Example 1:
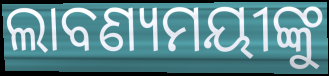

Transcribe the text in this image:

ଲାବଣ୍ୟମୟୀଙ୍କୁ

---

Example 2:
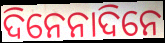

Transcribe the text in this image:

ଦିନେନାଦିନେ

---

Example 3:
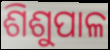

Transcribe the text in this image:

ଶିଶୁପାଳ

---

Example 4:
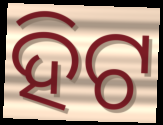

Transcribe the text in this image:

ହିଟ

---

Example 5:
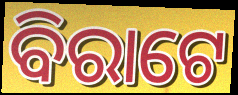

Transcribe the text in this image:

ବିରାଟେ